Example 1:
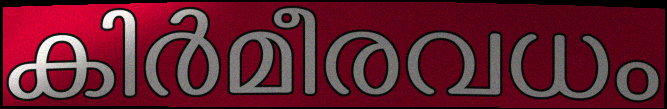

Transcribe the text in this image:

കിർമീരവധം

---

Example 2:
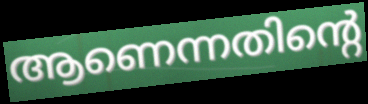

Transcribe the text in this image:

ആണെന്നതിന്റെ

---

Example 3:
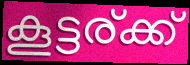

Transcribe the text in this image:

കൂട്ടര്ക്ക്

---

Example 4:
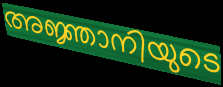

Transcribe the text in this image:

അജ്ഞാനിയുടെ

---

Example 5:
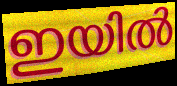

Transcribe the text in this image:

ഇയിൽ